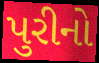
પુરીનો